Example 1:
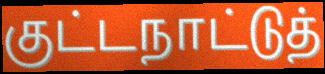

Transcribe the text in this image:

குட்டநாட்டுத்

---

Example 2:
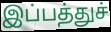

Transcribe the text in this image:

இப்பத்துச்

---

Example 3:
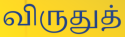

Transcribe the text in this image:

விருதுத்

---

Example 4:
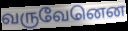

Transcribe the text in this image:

வருவேனென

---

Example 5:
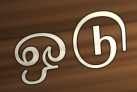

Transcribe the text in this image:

ஒடு